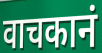
वाचकानं